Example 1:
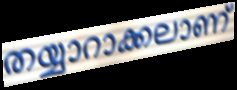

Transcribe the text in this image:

തയ്യാറാക്കലാണ്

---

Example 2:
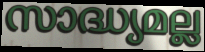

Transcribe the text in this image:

സാദ്ധ്യമല്ല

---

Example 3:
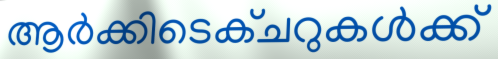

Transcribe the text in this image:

ആർക്കിടെക്ചറുകൾക്ക്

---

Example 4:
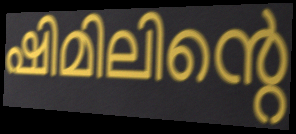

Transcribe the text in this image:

ഷിമിലിന്റെ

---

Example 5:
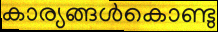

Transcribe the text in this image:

കാര്യങ്ങൾകൊണ്ടു